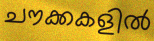
ചൗക്കകളിൽ